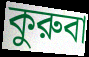
কুরুবা